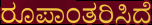
ರೂಪಾಂತರಿಸಿದೆ